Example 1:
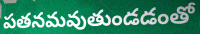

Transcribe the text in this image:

పతనమవుతుండడంతో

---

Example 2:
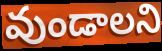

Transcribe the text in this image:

వుండాలని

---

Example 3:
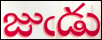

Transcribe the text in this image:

జుఁడు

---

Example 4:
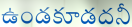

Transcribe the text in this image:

ఉండకూడదనీ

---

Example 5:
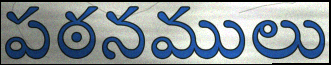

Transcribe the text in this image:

పఠనములు